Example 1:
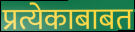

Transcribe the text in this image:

प्रत्येकाबाबत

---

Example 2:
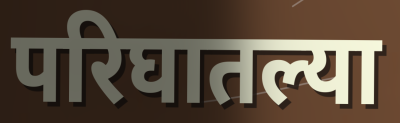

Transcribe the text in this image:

परिघातल्या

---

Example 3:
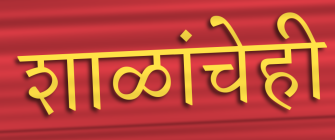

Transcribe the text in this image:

शाळांचेही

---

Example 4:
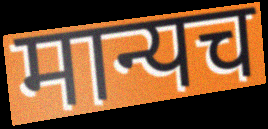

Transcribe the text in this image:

मान्यच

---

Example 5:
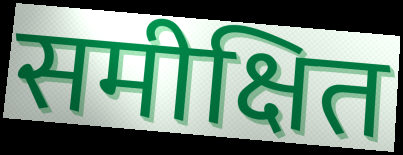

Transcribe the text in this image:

समीक्षित